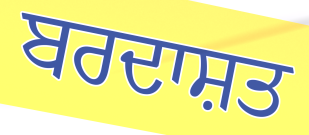
ਬਰਦਾਸ਼ਤ